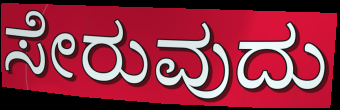
ಸೇರುವುದು